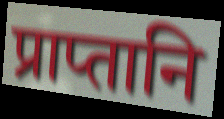
प्राप्तानि